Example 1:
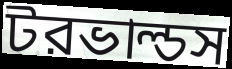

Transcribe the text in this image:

টরভাল্ডস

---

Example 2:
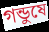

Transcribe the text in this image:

গন্ডুষে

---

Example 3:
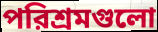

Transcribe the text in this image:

পরিশ্রমগুলো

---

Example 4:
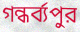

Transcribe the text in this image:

গন্ধর্ব্যপুর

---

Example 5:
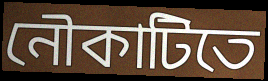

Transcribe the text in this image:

নৌকাটিতে